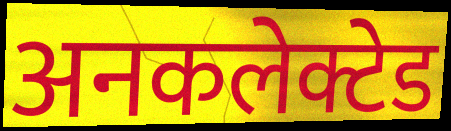
अनकलेक्टेड